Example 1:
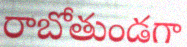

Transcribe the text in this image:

రాబోతుండగా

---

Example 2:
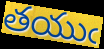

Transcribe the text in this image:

తయుఁ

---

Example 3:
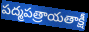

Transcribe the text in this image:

పద్మపత్రాయతాక్షీ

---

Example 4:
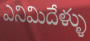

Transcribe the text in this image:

ఎనిమిదేళ్ళు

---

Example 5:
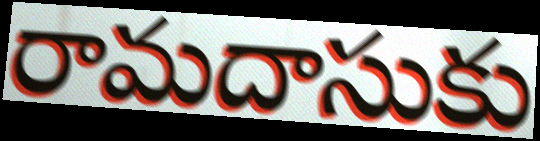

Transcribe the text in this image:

రామదాసుకు